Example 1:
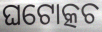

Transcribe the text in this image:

ଘଟୋତ୍କଚ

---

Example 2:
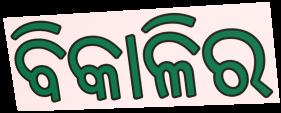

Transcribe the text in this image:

ବିକାଳିର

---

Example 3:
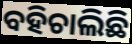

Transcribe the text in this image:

ବହିଚାଲିଛି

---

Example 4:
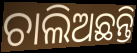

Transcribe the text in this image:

ଚାଲିଅଛନ୍ତି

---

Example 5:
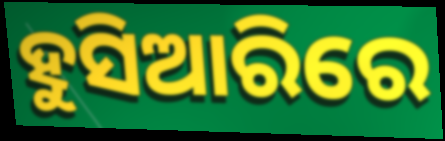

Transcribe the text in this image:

ହୁସିଆରିରେ